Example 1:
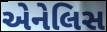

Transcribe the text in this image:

એનેલિસ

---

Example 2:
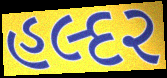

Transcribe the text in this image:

હલ્દર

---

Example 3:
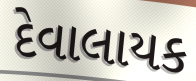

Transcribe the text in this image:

દેવાલાયક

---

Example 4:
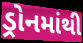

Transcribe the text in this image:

ડ્રોનમાંથી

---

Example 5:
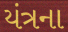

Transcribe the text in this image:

યંત્રના